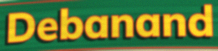
Debanand